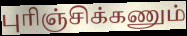
புரிஞ்சிக்கணும்